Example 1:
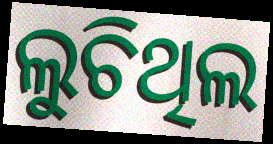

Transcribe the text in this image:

ଲୁଚିଥିଲ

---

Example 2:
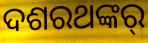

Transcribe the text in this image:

ଦଶରଥଙ୍କର୍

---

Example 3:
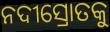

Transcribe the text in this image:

ନଦୀସ୍ରୋତକୁ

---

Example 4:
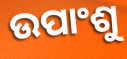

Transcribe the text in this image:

ଉପାଂଶୁ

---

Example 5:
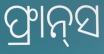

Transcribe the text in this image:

ଫ୍ରାନ୍‍ସ